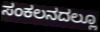
ಸಂಕಲನದಲ್ಲೂ